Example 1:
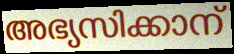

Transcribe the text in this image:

അഭ്യസിക്കാന്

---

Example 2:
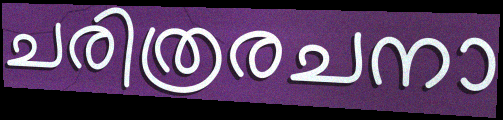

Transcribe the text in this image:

ചരിത്രരചനാ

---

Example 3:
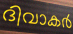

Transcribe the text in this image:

ദിവാകർ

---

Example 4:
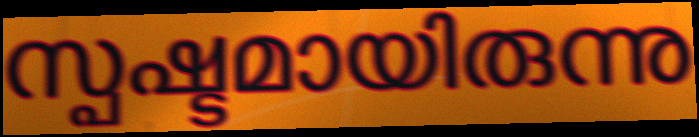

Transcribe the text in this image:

സ്പഷ്ടമായിരുന്നു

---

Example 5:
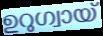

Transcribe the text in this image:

ഉറുഗ്വായ്